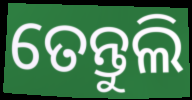
ତେନ୍ତୁଲି